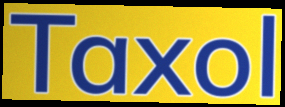
Taxol